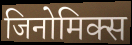
जिनोमिक्स